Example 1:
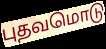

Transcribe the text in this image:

புதவமொடு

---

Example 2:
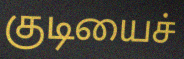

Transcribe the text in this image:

குடியைச்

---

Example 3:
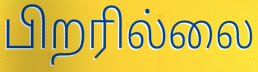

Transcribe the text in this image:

பிறரில்லை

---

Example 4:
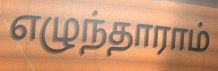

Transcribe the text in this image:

எழுந்தாராம்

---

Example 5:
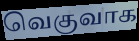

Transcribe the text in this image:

வெகுவாக